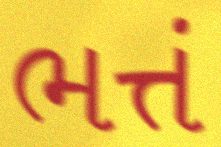
ભત્તં